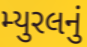
મ્યુરલનું